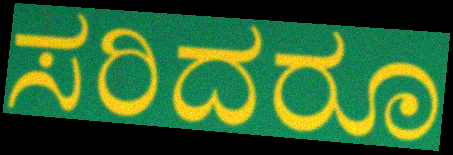
ಸರಿದರೂ